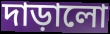
দাড়ালো